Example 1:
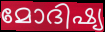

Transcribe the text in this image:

മോദിഷ്യ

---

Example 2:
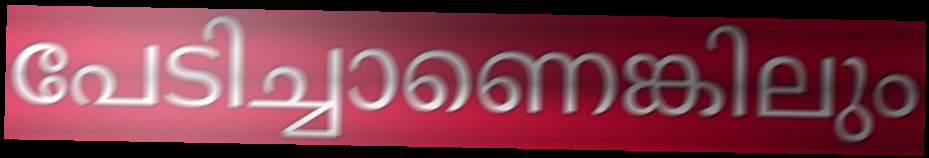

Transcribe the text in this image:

പേടിച്ചാണെങ്കിലും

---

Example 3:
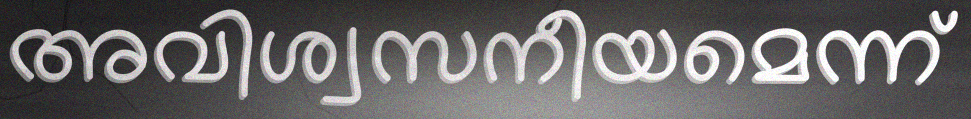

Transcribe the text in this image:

അവിശ്വസനീയമെന്ന്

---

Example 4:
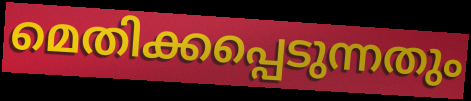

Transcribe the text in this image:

മെതിക്കപ്പെടുന്നതും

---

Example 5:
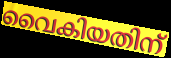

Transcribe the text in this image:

വൈകിയതിന്